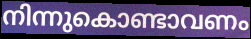
നിന്നുകൊണ്ടാവണം